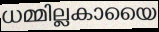
ധമ്മില്ലകായൈ